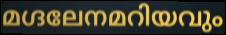
മഗ്ദലേനമറിയവും